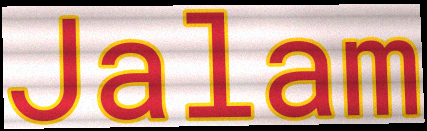
Jalam